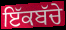
ਇੱਕਬੱਚੇ